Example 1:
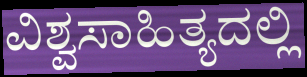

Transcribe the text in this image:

ವಿಶ್ವಸಾಹಿತ್ಯದಲ್ಲಿ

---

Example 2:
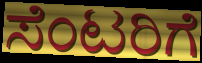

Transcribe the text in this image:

ಸೆಂಟರಿಗೆ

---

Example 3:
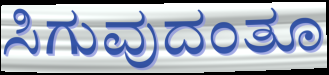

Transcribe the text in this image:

ಸಿಗುವುದಂತೂ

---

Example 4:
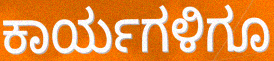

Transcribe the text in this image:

ಕಾರ್ಯಗಳಿಗೂ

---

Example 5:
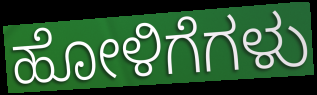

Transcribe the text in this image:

ಹೋಳಿಗೆಗಳು